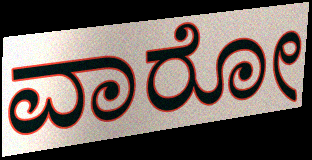
ವಾರೋ